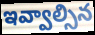
ఇవ్వాల్సిన